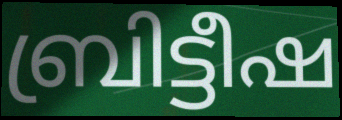
ബ്രിട്ടീഷ